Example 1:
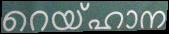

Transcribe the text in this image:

റെയ്ഹാന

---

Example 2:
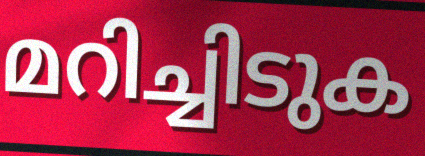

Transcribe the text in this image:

മറിച്ചിടുക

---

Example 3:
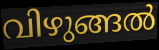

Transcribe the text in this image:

വിഴുങ്ങൽ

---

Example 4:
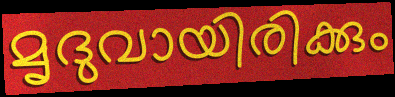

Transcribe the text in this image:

മൃദുവായിരിക്കും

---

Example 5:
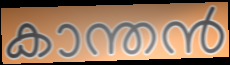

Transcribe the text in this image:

കാന്തൻ